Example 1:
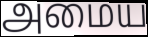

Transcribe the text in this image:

அமைய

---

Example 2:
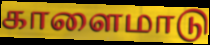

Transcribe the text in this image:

காளைமாடு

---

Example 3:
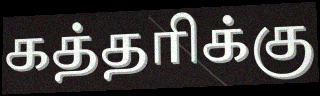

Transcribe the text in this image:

கத்தரிக்கு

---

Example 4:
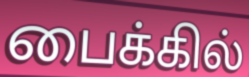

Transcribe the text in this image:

பைக்கில்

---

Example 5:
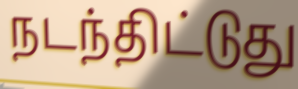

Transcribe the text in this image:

நடந்திட்டுது